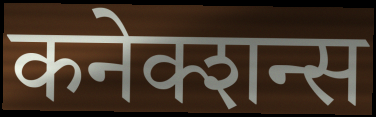
कनेक्शन्स